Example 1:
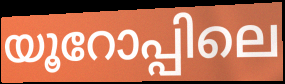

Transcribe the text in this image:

യൂറോപ്പിലെ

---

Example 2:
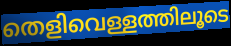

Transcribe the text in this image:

തെളിവെള്ളത്തിലൂടെ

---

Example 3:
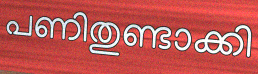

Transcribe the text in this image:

പണിതുണ്ടാക്കി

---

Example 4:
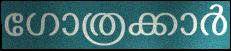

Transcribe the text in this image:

ഗോത്രക്കാർ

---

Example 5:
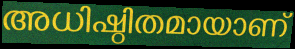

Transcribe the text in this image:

അധിഷ്ഠിതമായാണ്